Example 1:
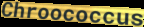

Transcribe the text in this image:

Chroococcus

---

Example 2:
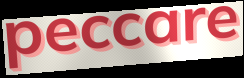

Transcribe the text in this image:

peccare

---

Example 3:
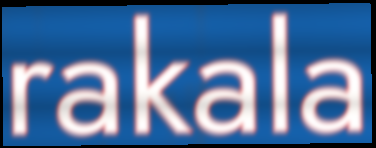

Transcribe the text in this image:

rakala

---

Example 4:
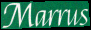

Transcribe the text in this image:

Marrus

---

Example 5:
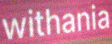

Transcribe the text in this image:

withania